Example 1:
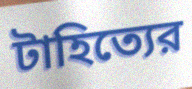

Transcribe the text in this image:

টাহিত্যের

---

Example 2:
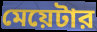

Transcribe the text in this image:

মেয়েটার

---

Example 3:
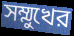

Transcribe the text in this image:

সম্মুখের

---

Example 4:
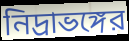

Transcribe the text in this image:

নিদ্রাভঙ্গের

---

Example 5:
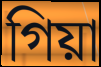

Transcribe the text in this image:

গিয়া